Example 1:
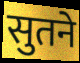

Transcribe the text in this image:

सुतने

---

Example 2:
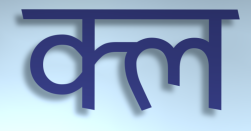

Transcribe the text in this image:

क्ल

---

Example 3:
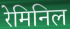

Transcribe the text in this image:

रेमिनिल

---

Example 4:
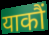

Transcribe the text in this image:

याकौं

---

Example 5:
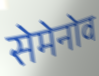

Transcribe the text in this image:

सेमेनोव